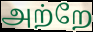
அற்றே